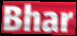
Bhar